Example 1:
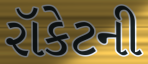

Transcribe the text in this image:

રૉકેટની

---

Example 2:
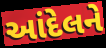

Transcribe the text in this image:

આંદેલને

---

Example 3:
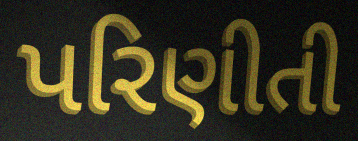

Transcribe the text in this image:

પરિણીતી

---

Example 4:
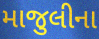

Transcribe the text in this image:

માજુલીના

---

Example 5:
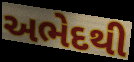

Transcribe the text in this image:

અભેદથી